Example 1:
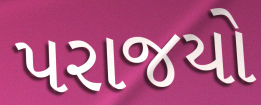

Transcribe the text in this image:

પરાજયો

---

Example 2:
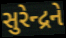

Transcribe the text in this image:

સુરેન્દ્રને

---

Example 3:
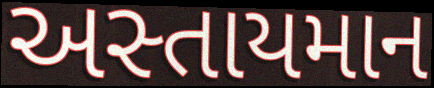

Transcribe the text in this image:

અસ્તાયમાન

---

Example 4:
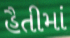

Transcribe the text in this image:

હૈતીમાં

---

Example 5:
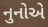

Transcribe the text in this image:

નુનોએ